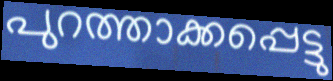
പുറത്താക്കപ്പെട്ടു